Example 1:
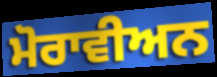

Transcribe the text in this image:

ਮੋਰਾਵੀਅਨ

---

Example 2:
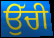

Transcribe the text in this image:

ਉੱਚੀ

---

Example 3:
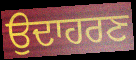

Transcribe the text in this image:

ਉਦਾਹਰਣ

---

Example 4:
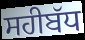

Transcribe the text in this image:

ਸਹੀਬੱਧ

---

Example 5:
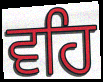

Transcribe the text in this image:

ਵਹਿ